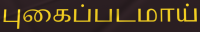
புகைப்படமாய்